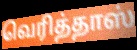
வெரித்தாஸ்